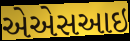
એએસઆઇ